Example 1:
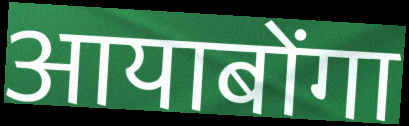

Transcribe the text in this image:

आयाबोंगा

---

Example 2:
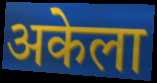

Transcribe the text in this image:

अकेला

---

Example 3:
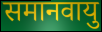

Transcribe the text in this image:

समानवायु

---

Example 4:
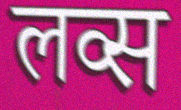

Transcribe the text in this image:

लव्स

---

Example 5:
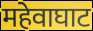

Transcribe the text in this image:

महेवाघाट